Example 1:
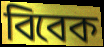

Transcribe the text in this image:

বিবেক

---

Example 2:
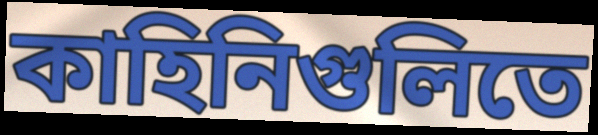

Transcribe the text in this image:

কাহিনিগুলিতে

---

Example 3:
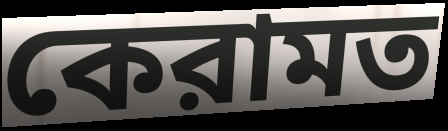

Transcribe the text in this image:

কেরামত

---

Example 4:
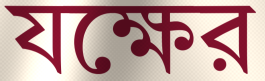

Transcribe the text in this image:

যক্ষের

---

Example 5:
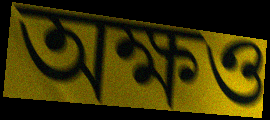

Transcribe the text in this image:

অক্ষও